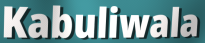
Kabuliwala